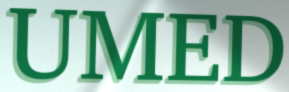
UMED